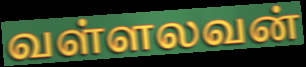
வள்ளலவன்